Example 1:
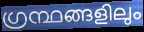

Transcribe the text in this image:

ഗ്രന്ഥങ്ങളിലും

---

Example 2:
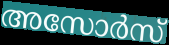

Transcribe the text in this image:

അസോർസ്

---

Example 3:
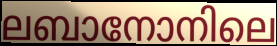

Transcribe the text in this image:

ലബാനോനിലെ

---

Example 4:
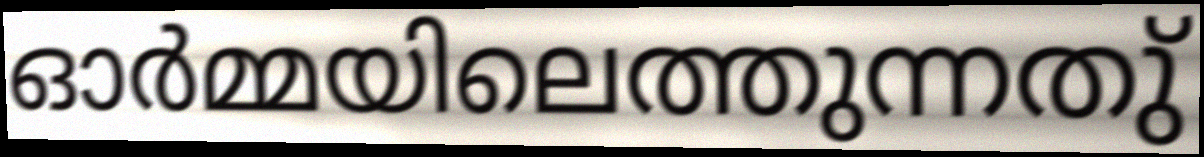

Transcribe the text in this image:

ഓർമ്മയിലെത്തുന്നതു്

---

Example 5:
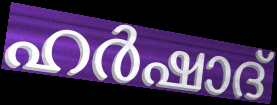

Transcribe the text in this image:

ഹർഷാദ്